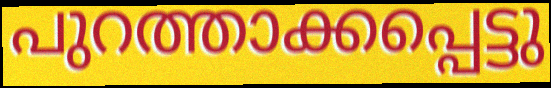
പുറത്താക്കപ്പെട്ടു